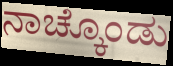
ನಾಚ್ಕೊಂಡು